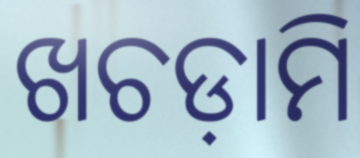
ଖଚଡ଼ାମି